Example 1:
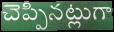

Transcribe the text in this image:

చెప్పినట్లుగా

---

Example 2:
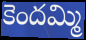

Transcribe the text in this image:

కెందమ్మి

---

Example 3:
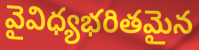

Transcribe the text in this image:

వైవిధ్యభరితమైన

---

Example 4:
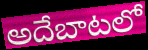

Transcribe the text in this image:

అదేబాటలో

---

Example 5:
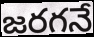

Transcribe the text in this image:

జరగనే